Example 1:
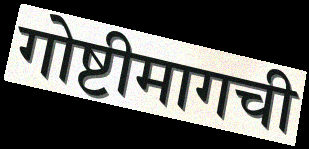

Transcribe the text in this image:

गोष्टीमागची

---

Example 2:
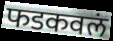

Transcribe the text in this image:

फडकवलं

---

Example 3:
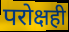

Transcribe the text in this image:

परोक्षही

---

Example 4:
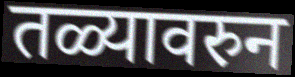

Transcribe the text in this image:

तळ्यावरुन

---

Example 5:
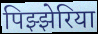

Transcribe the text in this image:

पिझ्झेरिया